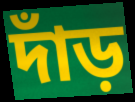
দাঁড়